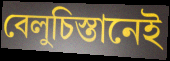
বেলুচিস্তানেই